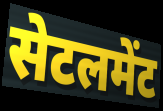
सेटलमेंट